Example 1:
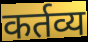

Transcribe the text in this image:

कर्तव्य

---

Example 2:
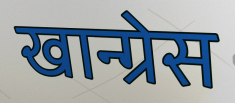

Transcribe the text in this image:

खान्ग्रेस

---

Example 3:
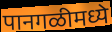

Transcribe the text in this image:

पानगळीमध्ये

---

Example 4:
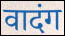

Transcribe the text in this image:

वादंग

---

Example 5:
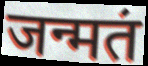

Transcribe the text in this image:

जन्मतं